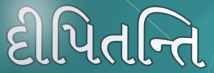
દીપિતન્તિ